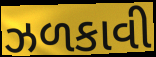
ઝળકાવી